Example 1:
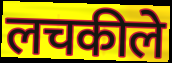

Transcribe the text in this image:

लचकीले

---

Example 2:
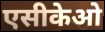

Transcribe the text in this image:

एसीकेओ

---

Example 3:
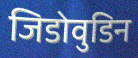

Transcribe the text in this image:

जिडोवुडिन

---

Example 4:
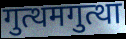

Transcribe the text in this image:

गुत्थमगुत्था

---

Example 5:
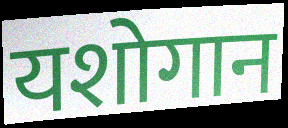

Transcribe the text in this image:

यशोगान